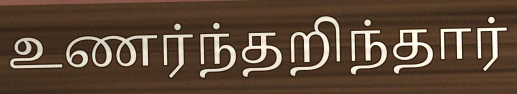
உணர்ந்தறிந்தார்